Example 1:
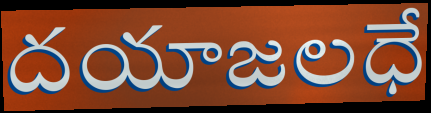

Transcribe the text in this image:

దయాజలధే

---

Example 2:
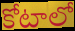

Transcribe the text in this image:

కోటాలో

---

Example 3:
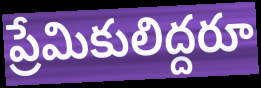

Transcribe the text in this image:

ప్రేమికులిద్దరూ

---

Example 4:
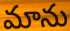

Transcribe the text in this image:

మాను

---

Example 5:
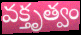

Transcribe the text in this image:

వక్తృత్వం